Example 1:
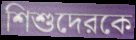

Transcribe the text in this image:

শিশুদেরকে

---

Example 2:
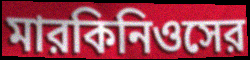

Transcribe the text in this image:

মারকিনিওসের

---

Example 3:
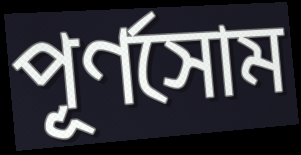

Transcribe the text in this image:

পূর্ণসোম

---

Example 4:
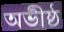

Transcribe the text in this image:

অভীষ্ঠ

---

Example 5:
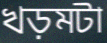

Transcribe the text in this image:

খড়মটা